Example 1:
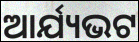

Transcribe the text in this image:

ଆର୍ଯ୍ୟଭଟ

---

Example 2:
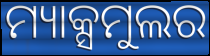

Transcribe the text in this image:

ମ୍ୟାକ୍ସମୁଲର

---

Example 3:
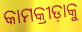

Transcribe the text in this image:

କାମକ୍ରୀଡ଼ାକୁ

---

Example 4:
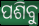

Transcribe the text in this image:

ପଶିବୁ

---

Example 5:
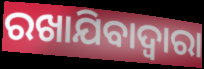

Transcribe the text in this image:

ରଖାଯିବାଦ୍ଵାରା